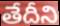
తేదీని